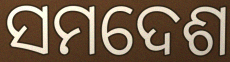
ସମଦେଶ